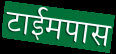
टाईमपास